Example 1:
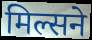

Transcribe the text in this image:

मिल्सने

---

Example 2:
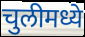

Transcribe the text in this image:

चुलीमध्ये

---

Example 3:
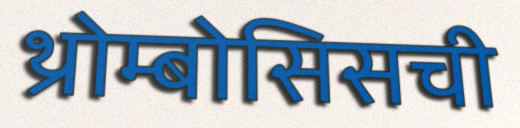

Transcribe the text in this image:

थ्रोम्बोसिसची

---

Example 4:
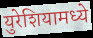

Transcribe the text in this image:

युरेशियामध्ये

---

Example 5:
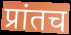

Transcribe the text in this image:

प्रांतच